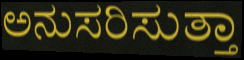
ಅನುಸರಿಸುತ್ತಾ